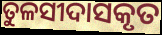
ତୁଳସୀଦାସକୃତ